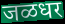
जळधर